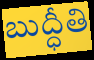
బుద్ధీతి